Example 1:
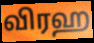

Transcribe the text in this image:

விரஹ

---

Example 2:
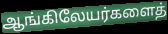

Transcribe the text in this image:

ஆங்கிலேயர்களைத்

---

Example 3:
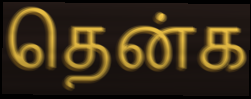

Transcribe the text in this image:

தென்க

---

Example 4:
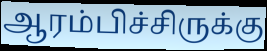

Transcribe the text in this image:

ஆரம்பிச்சிருக்கு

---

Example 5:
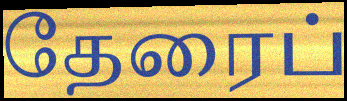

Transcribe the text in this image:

தேரைப்